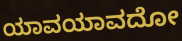
ಯಾವಯಾವದೋ